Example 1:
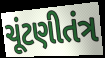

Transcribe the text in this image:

ચૂંટણીતંત્ર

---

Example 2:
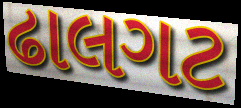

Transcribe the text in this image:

ઢાલગટ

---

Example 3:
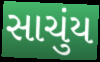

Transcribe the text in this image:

સાચુંય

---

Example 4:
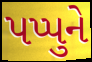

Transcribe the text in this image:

પપ્પુને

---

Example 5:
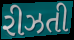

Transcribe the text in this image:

રીઝતી